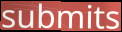
submits